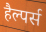
हैल्पर्स